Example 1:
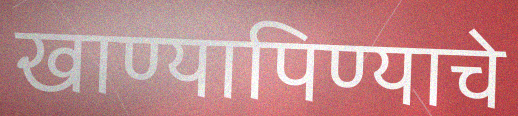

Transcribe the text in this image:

खाण्यापिण्याचे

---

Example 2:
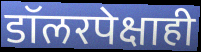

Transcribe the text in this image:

डॉलरपेक्षाही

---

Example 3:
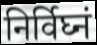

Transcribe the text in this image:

निर्विघ्नं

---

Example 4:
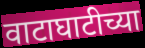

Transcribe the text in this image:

वाटाघाटीच्या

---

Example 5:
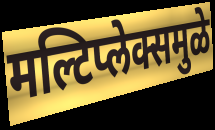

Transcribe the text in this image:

मल्टिप्लेक्समुळे